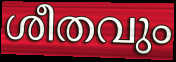
ശീതവും